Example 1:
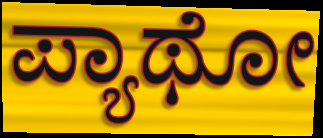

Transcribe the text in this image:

ಪ್ಯಾಥೋ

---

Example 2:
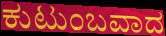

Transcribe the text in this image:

ಕುಟುಂಬವಾದ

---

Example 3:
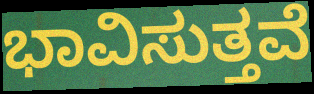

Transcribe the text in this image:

ಭಾವಿಸುತ್ತವೆ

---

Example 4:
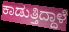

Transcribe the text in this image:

ಕಾಡುತ್ತಿದ್ದಾಳೆ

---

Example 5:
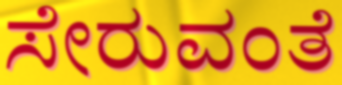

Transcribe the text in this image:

ಸೇರುವಂತೆ